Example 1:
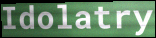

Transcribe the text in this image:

Idolatry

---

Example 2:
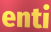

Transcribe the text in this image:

enti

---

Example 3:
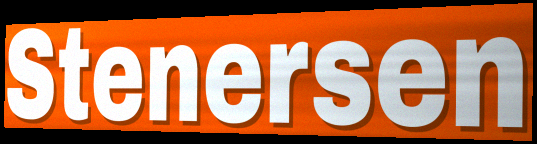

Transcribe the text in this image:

Stenersen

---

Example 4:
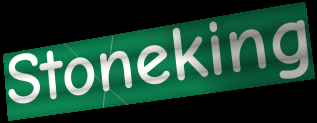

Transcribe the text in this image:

Stoneking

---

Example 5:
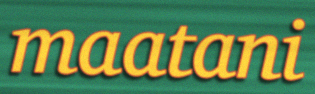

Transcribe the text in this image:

maatani